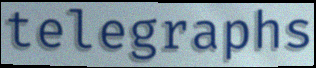
telegraphs